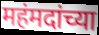
महंमदांच्या